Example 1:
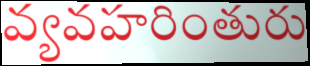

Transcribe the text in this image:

వ్యవహరింతురు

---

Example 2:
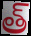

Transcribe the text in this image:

త్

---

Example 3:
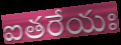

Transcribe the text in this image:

ఐతరేయః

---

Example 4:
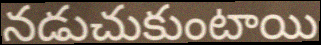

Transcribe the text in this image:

నడుచుకుంటాయి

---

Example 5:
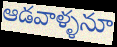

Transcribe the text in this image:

ఆడవాళ్ళనూ